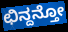
ಛಿನ್ದನ್ತೋ